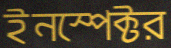
ইনস্পেক্টর